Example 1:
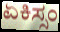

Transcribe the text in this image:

ಏಕಿಸ್ಸಂ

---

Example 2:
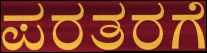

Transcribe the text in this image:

ಪರತರಗೆ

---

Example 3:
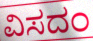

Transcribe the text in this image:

ವಿಸದಂ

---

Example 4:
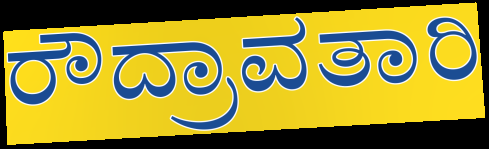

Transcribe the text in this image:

ರೌದ್ರಾವತಾರಿ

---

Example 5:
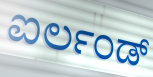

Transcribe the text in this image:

ಐರ್ಲಂಡ್